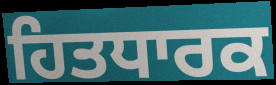
ਹਿਤਧਾਰਕ